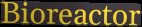
Bioreactor